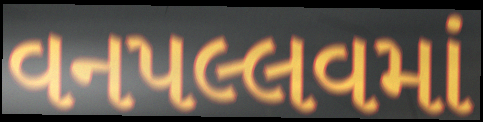
વનપલ્લવમાં